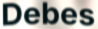
Debes